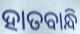
ହାତବାନ୍ଧି